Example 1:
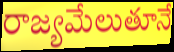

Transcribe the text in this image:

రాజ్యమేలుతూనే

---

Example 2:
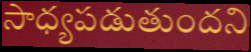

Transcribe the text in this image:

సాధ్యపడుతుందని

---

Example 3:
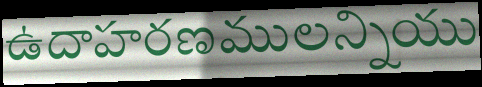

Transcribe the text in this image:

ఉదాహరణములన్నియు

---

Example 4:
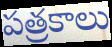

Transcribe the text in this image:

పత్రకాలు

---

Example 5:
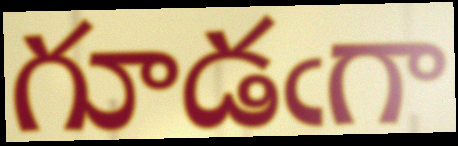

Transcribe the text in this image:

గూడఁగా